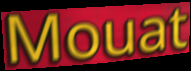
Mouat